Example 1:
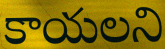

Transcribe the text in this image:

కాయలని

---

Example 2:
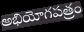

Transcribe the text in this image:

అభియోగపత్రం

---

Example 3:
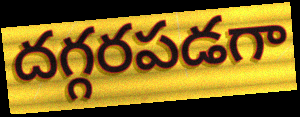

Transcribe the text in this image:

దగ్గరపడగా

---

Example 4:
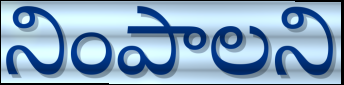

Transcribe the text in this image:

నింపాలని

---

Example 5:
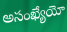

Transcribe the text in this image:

అసంఖ్యేయో